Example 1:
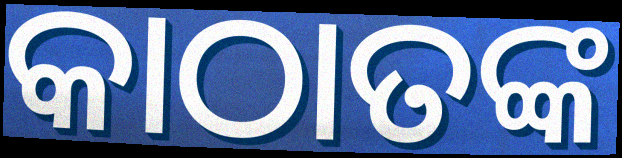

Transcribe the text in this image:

କାଠାତଙ୍କ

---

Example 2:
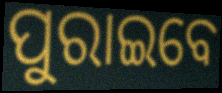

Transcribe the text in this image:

ପୁରାଇବେ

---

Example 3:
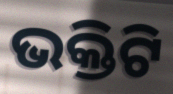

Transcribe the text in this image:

ଭକ୍ତିଟି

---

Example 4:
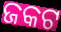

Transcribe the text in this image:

ଜକଟ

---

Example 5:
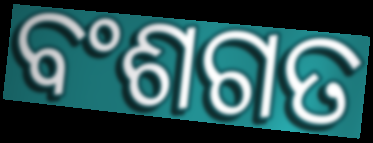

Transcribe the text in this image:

ବଂଶଗତ